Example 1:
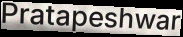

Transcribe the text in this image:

Pratapeshwar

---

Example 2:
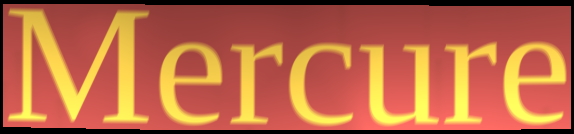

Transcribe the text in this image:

Mercure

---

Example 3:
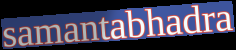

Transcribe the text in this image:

samantabhadra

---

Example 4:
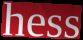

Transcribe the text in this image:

hess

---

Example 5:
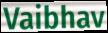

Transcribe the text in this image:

Vaibhav